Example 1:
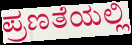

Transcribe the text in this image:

ಪ್ರಣತೆಯಲ್ಲಿ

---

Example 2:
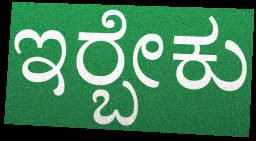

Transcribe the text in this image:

ಇರ‍್ಬೇಕು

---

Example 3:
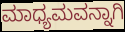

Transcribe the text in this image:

ಮಾಧ್ಯಮವನ್ನಾಗಿ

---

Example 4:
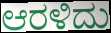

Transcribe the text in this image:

ಆರಳಿದು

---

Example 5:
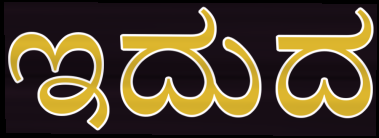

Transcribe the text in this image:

ಇದುದ